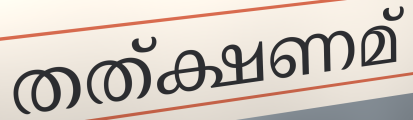
തത്ക്ഷണമ്